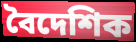
বৈদেশিক